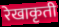
रेखाकृती